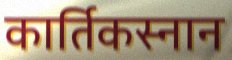
कार्तिकस्नान